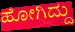
ಹೋಗಿದ್ದು